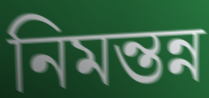
নিমন্তন্ন